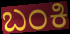
ಬಂಕಿ